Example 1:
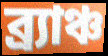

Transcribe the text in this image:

ব্র্যাঞ্চ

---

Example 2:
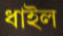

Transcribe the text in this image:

ধাইল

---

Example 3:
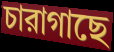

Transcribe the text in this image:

চারাগাছে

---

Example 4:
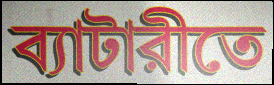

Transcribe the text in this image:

ব্যাটারীতে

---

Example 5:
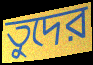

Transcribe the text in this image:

তুদের